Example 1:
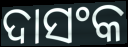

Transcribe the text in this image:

ଦାସଂକ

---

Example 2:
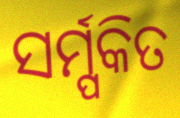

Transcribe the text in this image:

ସର୍ମ୍ପକିତ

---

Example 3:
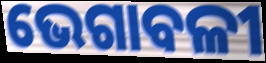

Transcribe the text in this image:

ଭେଗାବଳୀ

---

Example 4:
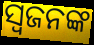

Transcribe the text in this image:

ସ୍ଵଜନଙ୍କ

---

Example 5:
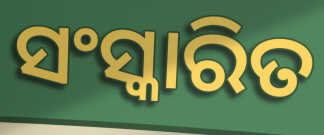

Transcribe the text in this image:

ସଂସ୍କାରିତ